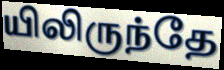
யிலிருந்தே